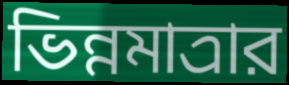
ভিন্নমাত্রার